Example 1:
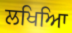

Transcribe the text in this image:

ਲਖਿਆਿ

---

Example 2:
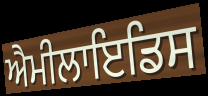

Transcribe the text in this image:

ਐਮੀਲਾਇਡਿਸ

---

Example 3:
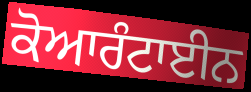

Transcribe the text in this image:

ਕੋਆਰੰਟਾਈਨ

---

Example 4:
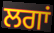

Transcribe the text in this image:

ਲਗਾਂ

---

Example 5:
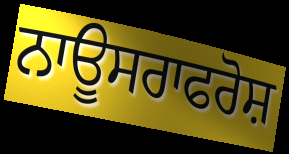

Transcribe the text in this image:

ਨਾਊਸਰਾਫਰੋਸ਼